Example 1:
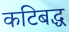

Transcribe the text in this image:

कटिबद्ध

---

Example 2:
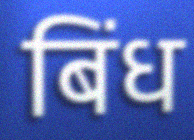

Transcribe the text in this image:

बिंध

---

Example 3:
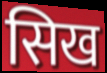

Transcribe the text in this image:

सिख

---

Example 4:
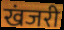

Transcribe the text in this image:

खंजरी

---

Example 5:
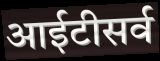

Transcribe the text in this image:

आईटीसर्व